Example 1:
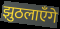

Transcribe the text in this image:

झुठलाएँगे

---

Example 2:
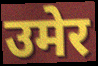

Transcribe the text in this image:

उमेर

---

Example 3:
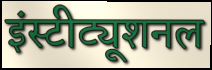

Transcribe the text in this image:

इंस्टीट्यूशनल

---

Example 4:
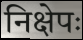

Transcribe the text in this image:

निक्षेपः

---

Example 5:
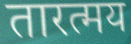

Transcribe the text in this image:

तारत्मय